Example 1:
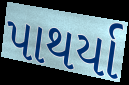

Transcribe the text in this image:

પાથર્યા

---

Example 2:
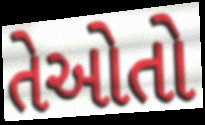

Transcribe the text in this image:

તેઓતો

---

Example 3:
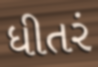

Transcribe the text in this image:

ધીતરં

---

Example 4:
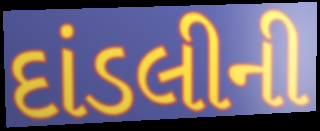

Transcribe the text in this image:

દાંડલીની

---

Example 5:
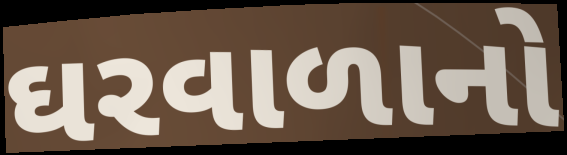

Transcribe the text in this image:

ઘરવાળાનો